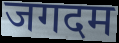
जगदम